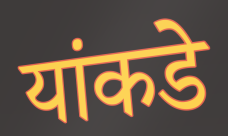
यांकडे